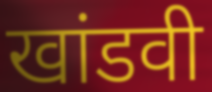
खांडवी